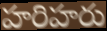
హరిహరు